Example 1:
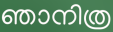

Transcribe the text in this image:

ഞാനിത്ര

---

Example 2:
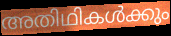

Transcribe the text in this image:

അതിഥികൾക്കും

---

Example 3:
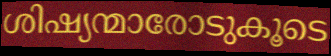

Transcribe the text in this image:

ശിഷ്യന്മാരോടുകൂടെ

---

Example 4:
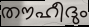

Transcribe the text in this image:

തൗഹീദും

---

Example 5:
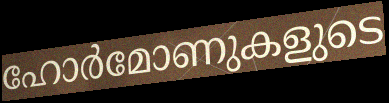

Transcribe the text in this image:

ഹോർമോണുകളുടെ